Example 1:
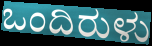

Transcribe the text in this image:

ಒಂದಿರುಳು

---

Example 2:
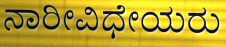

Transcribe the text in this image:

ನಾರೀವಿಧೇಯರು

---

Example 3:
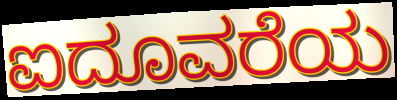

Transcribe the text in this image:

ಐದೂವರೆಯ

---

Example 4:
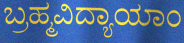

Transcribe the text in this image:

ಬ್ರಹ್ಮವಿದ್ಯಾಯಾಂ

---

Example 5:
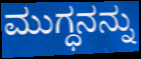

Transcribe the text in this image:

ಮುಗ್ಧನನ್ನು